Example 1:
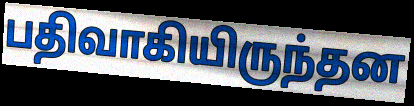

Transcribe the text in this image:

பதிவாகியிருந்தன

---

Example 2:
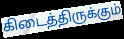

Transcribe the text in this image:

கிடைத்திருக்கும்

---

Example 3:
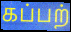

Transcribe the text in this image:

கப்பற்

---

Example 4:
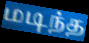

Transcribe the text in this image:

மடிந்த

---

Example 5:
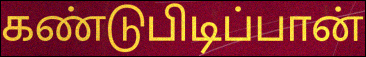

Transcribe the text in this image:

கண்டுபிடிப்பான்